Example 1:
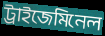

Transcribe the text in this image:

ট্ৰাইজেমিনেল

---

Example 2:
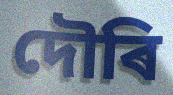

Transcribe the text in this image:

দৌৰি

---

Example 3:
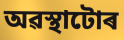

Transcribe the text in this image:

অৱস্থাটোৰ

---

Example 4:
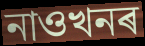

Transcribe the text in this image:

নাওখনৰ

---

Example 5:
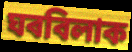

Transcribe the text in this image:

ঘৰবিলাক